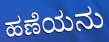
ಹಣೆಯನು